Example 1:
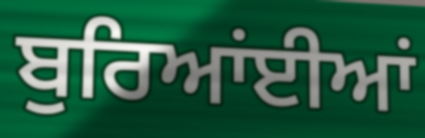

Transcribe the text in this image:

ਬੁਰਿਆਂਈਆਂ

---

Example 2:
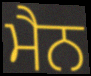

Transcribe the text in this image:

ਮੈਨ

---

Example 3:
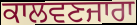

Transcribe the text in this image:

ਕਾਲਵਣਜਾਰਾ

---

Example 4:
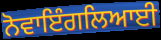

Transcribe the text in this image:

ਨੋਵਾਇੰਗਲਿਆਈ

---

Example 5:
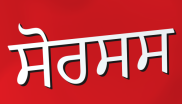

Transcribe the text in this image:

ਸੋਰਸਸ